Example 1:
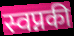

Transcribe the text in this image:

स्वप्नकी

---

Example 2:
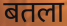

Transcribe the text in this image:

बतला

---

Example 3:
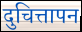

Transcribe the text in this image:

दुचित्तापन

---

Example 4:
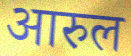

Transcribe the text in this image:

आरुल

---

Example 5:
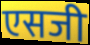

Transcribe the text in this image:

एसजी